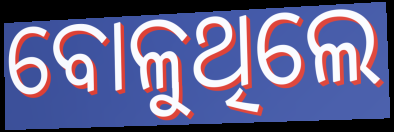
ବୋଳୁଥିଲେ